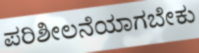
ಪರಿಶೀಲನೆಯಾಗಬೇಕು